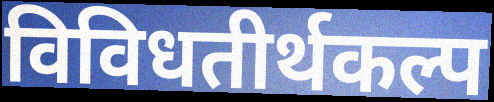
विविधतीर्थकल्प